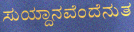
ಸುಯ್ದಾನವೆಂದೆನುತ